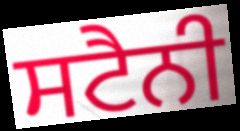
ਸਟੈਨੀ